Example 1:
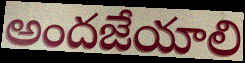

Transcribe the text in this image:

అందజేయాలి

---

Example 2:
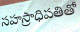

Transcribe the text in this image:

సహస్రాధిపతితో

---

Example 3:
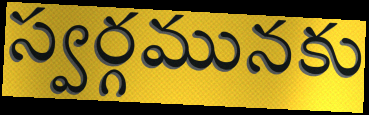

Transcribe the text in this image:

స్వర్గమునకు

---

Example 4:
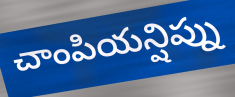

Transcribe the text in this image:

చాంపియన్షిప్ను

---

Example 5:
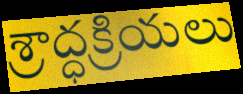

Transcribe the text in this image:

శ్రాద్ధక్రియలు